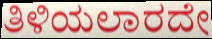
ತಿಳಿಯಲಾರದೇ